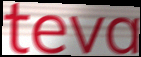
teva